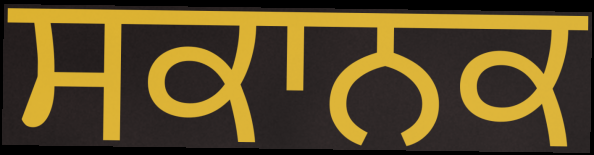
ਸਕਾਨਕ